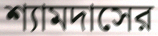
শ্যামদাসের